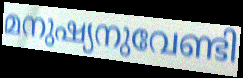
മനുഷ്യനുവേണ്ടി